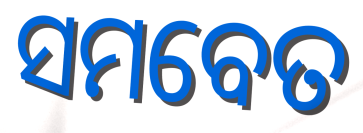
ସମବେତ